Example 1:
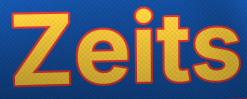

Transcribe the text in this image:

Zeits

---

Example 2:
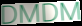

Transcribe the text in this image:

DMDM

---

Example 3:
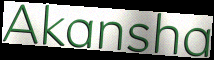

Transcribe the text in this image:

Akansha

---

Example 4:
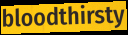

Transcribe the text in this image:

bloodthirsty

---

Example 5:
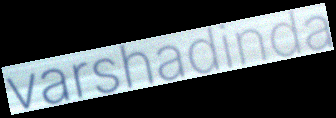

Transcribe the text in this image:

varshadinda